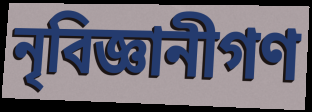
নৃবিজ্ঞানীগণ